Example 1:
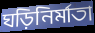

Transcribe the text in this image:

ঘড়িনির্মাতা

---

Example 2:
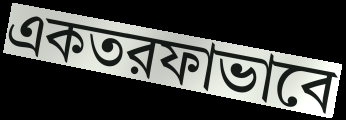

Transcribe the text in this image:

একতরফাভাবে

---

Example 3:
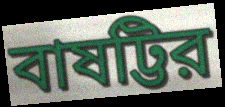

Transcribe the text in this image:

বাষট্টির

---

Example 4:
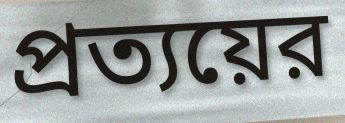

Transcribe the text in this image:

প্রত্যয়ের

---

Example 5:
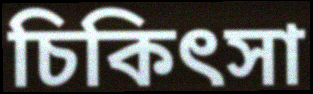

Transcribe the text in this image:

চিকিৎসা